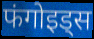
फंगोइड्स